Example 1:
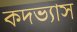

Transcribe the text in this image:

কদভ্যাস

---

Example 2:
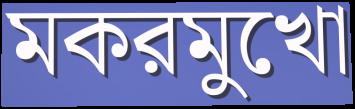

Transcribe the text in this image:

মকরমুখো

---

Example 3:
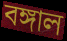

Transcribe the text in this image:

বঙ্গাল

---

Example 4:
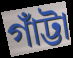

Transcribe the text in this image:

গাঁট্টা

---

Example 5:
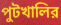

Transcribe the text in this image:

পুটখালির